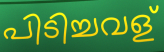
പിടിച്ചവള്